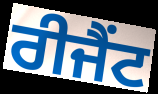
ਰੀਜੈਂਟ